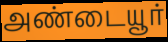
அண்டையூர்